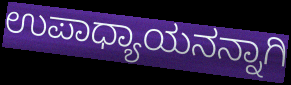
ಉಪಾಧ್ಯಾಯನನ್ನಾಗಿ